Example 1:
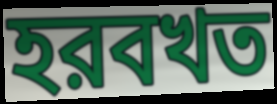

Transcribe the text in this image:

হরবখত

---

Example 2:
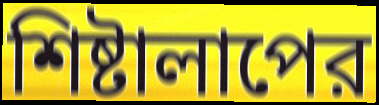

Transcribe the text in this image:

শিষ্টালাপের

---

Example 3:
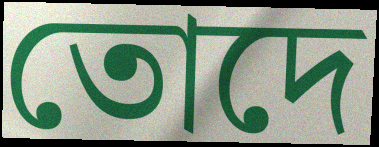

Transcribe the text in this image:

তোদে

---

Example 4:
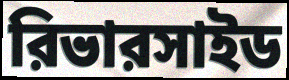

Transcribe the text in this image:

রিভারসাইড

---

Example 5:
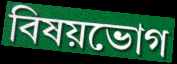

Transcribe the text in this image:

বিষয়ভোগ